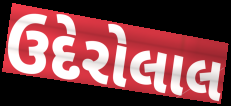
ઉદેરોલાલ